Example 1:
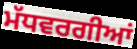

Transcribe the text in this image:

ਮੱਧਵਰਗੀਆਂ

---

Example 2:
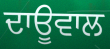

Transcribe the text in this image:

ਦਾਊਵਾਲ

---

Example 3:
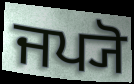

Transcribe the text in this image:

ਜਪ੍ਯੋ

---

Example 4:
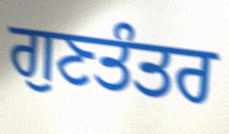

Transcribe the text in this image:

ਗੁਣਤੰਤਰ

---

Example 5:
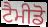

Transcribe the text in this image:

ਟੈਮੀਡੋ